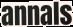
annals